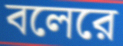
বলেরে